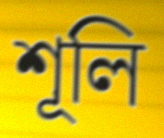
শূলি